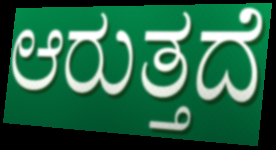
ಆರುತ್ತದೆ